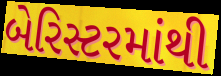
બેરિસ્ટરમાંથી